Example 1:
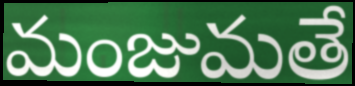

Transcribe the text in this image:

మంజుమతే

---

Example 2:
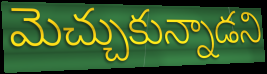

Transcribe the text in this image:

మెచ్చుకున్నాడని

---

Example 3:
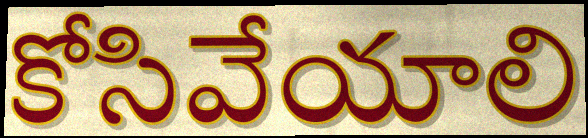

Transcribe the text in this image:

కోసివేయాలి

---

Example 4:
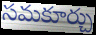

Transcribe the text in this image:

సమకూర్చు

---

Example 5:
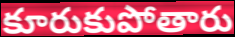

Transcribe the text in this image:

కూరుకుపోతారు